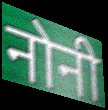
नोनी